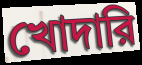
খোদারি